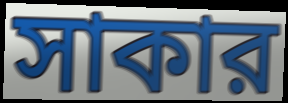
সাকার